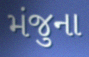
મંજુના